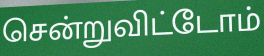
சென்றுவிட்டோம்